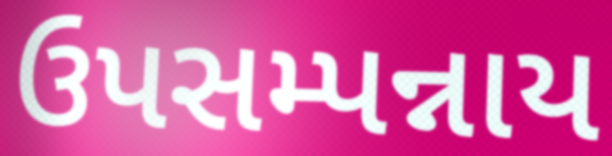
ઉપસમ્પન્નાય